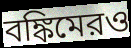
বঙ্কিমেরও